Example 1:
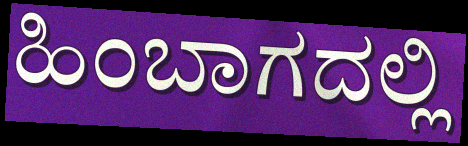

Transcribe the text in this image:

ಹಿಂಬಾಗದಲ್ಲಿ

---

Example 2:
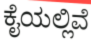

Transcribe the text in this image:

ಕೈಯಲ್ಲಿವೆ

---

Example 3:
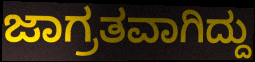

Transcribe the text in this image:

ಜಾಗ್ರತವಾಗಿದ್ದು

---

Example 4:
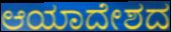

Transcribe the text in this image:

ಆಯಾದೇಶದ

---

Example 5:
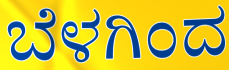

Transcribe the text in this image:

ಬೆಳಗಿಂದ